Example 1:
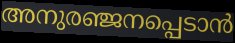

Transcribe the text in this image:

അനുരഞ്ജനപ്പെടാൻ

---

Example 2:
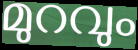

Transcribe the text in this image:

മുറവും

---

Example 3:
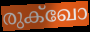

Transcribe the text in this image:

രുക്ഖോ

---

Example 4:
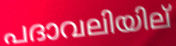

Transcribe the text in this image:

പദാവലിയില്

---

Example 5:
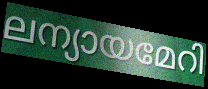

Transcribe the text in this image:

ലന്യായമേറി